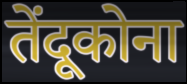
तेंदूकोना